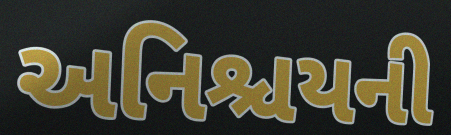
અનિશ્ચયની